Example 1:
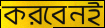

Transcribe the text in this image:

করবেনই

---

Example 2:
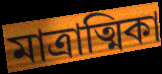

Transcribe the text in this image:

মাত্রাত্মিকা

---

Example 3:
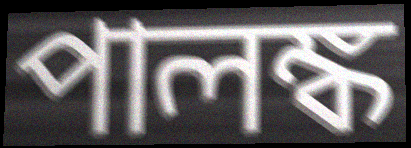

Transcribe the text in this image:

পালঙ্ক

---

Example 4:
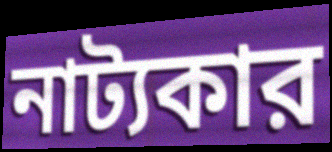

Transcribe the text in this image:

নাট্যকার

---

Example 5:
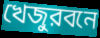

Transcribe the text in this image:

খেজুরবনে